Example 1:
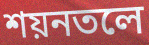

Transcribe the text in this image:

শয়নতলে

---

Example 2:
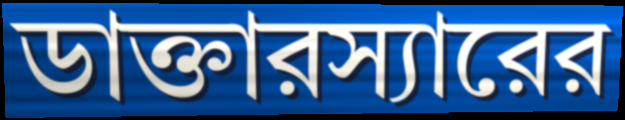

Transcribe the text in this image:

ডাক্তারস্যারের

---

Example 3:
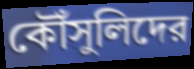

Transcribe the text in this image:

কৌঁসুলিদের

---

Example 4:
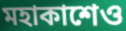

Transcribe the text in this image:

মহাকাশেও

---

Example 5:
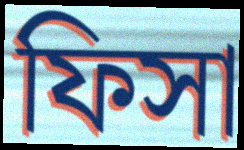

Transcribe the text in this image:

ফিসা